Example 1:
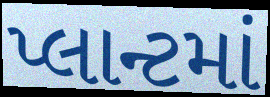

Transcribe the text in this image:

પ્લાન્ટમાં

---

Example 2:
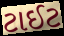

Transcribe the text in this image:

ટાઈટ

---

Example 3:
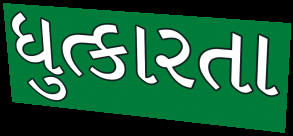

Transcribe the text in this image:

ધુત્કારતા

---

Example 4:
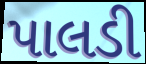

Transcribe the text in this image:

પાલડી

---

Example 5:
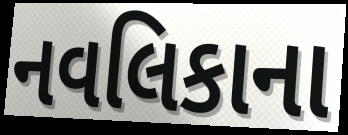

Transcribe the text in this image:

નવલિકાના